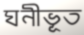
ঘনীভূত